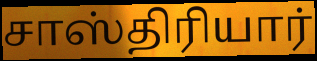
சாஸ்திரியார்